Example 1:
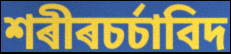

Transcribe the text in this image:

শৰীৰচৰ্চাবিদ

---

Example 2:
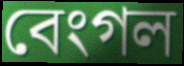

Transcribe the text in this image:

বেংগল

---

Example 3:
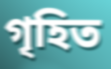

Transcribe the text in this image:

গৃহিত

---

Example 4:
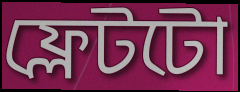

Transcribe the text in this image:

ফ্লেটটো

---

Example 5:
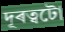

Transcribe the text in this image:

দূৰত্বটো